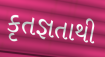
કૃતજ્ઞતાથી